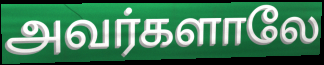
அவர்களாலே